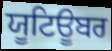
ਯੂਟਿਊਬਰ